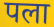
पला